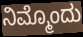
ನಿಮ್ಮೊಂದು